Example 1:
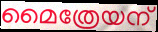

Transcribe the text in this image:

മൈത്രേയന്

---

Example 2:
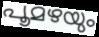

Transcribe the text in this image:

പൂമഴയും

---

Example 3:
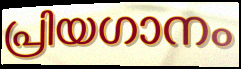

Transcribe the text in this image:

പ്രിയഗാനം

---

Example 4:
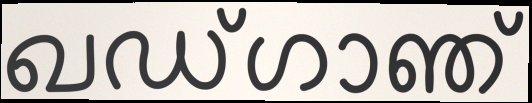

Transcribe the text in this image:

ഖഡ്ഗാഞ്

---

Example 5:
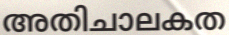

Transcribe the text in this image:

അതിചാലകത